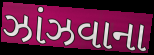
ઝાંઝવાના